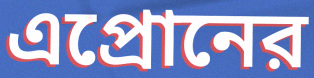
এপ্রোনের